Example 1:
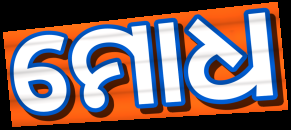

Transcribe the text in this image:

ମୋଧ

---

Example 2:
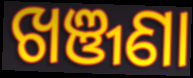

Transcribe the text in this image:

ଖଞ୍ଜଣା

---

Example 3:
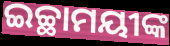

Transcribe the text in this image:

ଇଚ୍ଛାମୟୀଙ୍କ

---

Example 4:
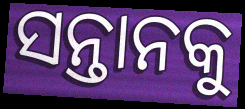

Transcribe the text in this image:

ସନ୍ତାନକୁ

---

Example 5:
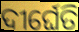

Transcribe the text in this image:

ଦୀର୍ଘେତି